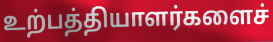
உற்பத்தியாளர்களைச்